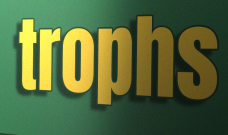
trophs